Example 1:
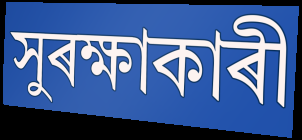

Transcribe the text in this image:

সুৰক্ষাকাৰী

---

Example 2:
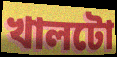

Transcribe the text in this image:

খালটো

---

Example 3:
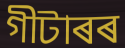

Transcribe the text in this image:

গীটাৰৰ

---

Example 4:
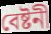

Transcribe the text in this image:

বেষ্টনী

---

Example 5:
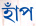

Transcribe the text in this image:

হাঁপ